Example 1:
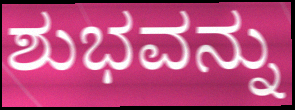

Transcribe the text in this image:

ಶುಭವನ್ನು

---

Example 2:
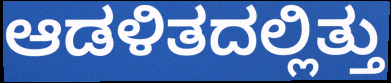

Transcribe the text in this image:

ಆಡಳಿತದಲ್ಲಿತ್ತು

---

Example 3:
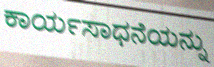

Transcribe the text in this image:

ಕಾರ್ಯಸಾಧನೆಯನ್ನು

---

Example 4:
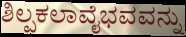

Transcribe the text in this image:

ಶಿಲ್ಪಕಲಾವೈಭವವನ್ನು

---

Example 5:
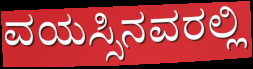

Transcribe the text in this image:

ವಯಸ್ಸಿನವರಲ್ಲಿ